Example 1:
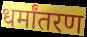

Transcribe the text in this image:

धर्मांतरण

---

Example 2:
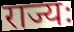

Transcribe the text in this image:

राज्यः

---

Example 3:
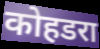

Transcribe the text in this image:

कोहडरा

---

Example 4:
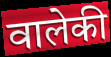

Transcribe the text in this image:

वालेकी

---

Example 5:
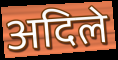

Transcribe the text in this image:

अदिले